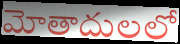
మోతాదులలో